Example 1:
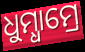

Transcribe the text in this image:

ଧୁମ୍ଧାମ୍ରେ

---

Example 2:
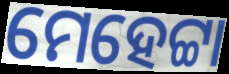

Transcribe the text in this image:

ମେହେଟ୍ଟା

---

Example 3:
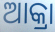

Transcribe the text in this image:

ଆକ୍ରା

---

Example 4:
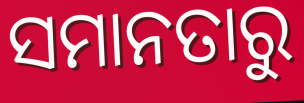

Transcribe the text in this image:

ସମାନତାରୁ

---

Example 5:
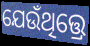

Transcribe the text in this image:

ଯେଉଁଥିତ୍ତ୍ରେ